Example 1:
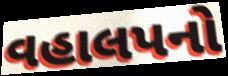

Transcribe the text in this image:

વહાલપનો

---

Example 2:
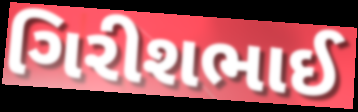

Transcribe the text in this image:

ગિરીશભાઈ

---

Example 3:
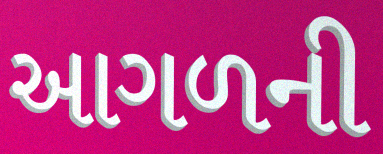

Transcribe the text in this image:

આગળની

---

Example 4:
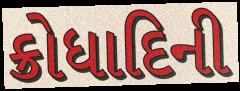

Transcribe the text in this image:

ક્રોધાદિની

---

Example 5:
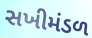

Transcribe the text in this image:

સખીમંડળ